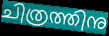
ചിത്രത്തിനു